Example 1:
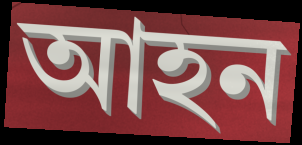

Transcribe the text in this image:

আহন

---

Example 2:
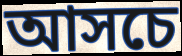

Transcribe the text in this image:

আসচে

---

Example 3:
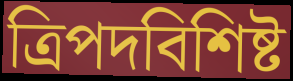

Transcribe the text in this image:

ত্রিপদবিশিষ্ট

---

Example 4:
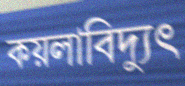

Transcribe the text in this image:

কয়লাবিদ্যুৎ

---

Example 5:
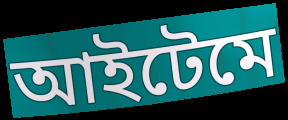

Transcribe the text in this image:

আইটেমে